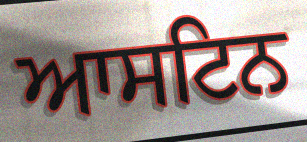
ਆਸਟਿਨ